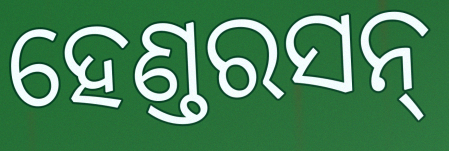
ହେଣ୍ଡରସନ୍